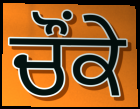
ਚੌਂਕੇ